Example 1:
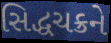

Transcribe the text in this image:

સિદ્ધચક્રને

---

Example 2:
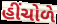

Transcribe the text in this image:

હીંચોળે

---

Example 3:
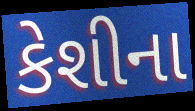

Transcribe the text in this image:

કેશીના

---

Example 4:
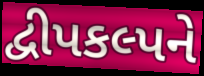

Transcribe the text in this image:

દ્વીપકલ્પને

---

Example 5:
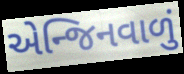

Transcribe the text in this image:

એન્જિનવાળું